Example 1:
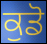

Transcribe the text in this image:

ਕੁਡੋ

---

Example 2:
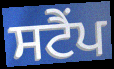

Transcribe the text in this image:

ਸਟੈਂਪ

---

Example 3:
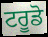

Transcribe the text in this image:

ਟਰੂਡੋ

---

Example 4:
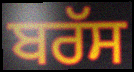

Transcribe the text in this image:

ਬਰੱਸ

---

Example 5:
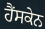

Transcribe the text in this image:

ਹੈਂਸਕੇਨ